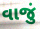
વાજું